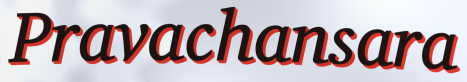
Pravachansara